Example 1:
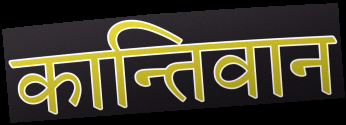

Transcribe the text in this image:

कान्तिवान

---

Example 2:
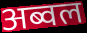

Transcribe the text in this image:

अब्वल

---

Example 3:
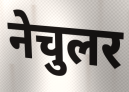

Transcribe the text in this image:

नेचुलर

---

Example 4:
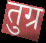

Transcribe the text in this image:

तुग्र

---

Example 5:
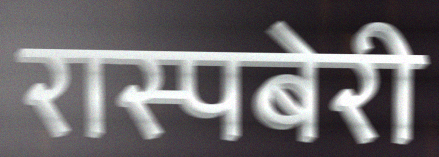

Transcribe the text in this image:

रास्पबेरी